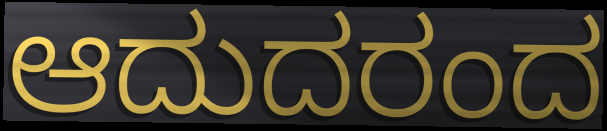
ಆದುದರಂದ